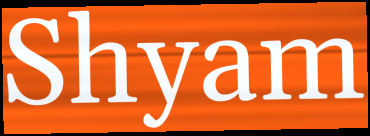
Shyam